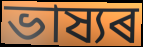
ভাষ্যৰ